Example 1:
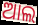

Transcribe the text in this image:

ଆଲ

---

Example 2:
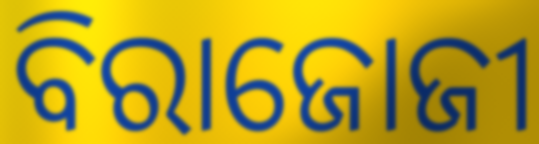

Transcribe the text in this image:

ବିରାଜୋଜୀ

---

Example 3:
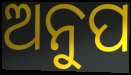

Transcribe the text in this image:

ଅନୁପ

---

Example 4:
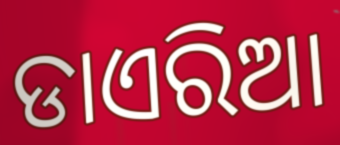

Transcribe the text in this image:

ଡାଏରିଆ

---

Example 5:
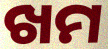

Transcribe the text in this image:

ଖମ